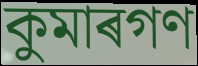
কুমাৰগণ